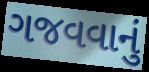
ગજવવાનું